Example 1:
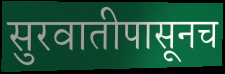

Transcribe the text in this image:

सुरवातीपासूनच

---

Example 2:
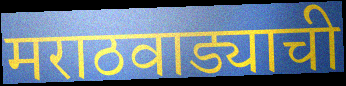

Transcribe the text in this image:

मराठवाड्याची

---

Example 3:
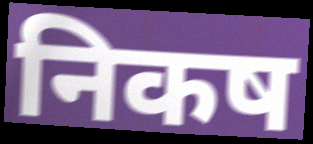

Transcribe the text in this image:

निकष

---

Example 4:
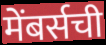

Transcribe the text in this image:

मेंबर्सची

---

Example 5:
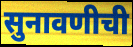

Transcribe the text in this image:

सुनावणीची